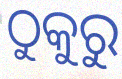
ଠୁକୁରୁ